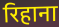
रिहाना